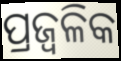
ପ୍ରଜ୍ଵଳିକ